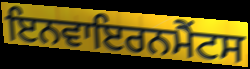
ਇਨਵਾਇਰਨਮੈਂਟਸ